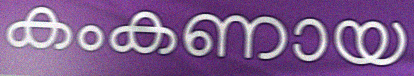
കംകണായ